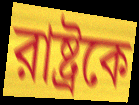
রাষ্ট্রকে